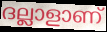
ദല്ലാളാണ്